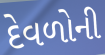
દેવળોની